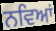
ਨਵਿਆਂ